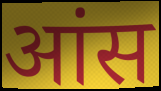
आंस